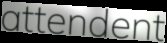
attendent